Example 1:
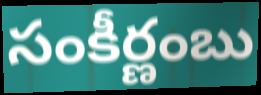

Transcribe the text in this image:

సంకీర్ణంబు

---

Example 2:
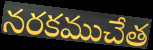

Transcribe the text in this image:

నరకముచేత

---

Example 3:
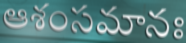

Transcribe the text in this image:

ఆశంసమానః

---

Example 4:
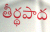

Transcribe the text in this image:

తీర్థపాద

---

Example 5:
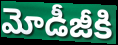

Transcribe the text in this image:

మోడీజీకి